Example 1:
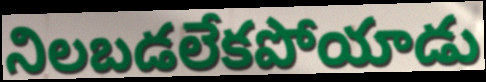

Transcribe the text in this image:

నిలబడలేకపోయాడు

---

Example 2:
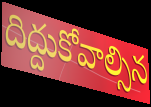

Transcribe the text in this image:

దిద్దుకోవాల్సిన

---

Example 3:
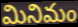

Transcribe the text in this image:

మినిమం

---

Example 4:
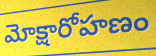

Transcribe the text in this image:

మోక్షారోహణం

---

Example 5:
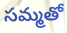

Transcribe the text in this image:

సమ్మతో